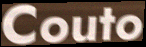
Couto